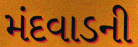
મંદવાડની